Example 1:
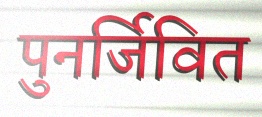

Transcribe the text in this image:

पुनर्जिवित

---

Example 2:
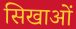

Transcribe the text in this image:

सिखाओं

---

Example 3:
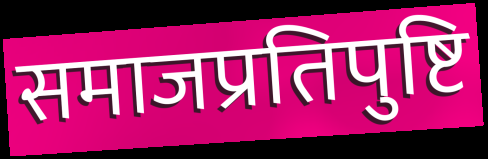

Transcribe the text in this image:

समाजप्रतिपुष्टि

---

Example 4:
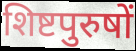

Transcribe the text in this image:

शिष्टपुरुषों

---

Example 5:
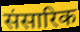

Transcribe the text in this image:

संसारिक